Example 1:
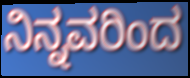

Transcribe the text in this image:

ನಿನ್ನವರಿಂದ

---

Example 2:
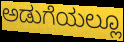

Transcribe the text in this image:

ಅಡುಗೆಯಲ್ಲೂ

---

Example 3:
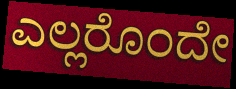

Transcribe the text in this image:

ಎಲ್ಲರೊಂದೇ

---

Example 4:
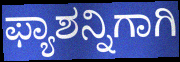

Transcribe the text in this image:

ಫ್ಯಾಶನ್ನಿಗಾಗಿ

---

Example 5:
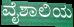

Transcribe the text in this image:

ವೈಶಾಲಿಯ